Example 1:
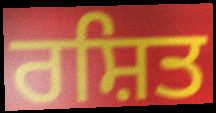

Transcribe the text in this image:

ਰਸ਼ਿਤ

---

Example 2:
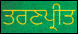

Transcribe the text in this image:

ਤਰਣਪ੍ਰੀਤ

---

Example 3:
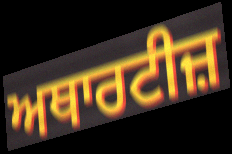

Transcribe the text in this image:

ਅਥਾਰਟੀਜ਼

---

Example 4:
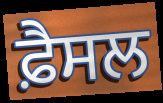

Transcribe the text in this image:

ਫ਼ੈਸਲ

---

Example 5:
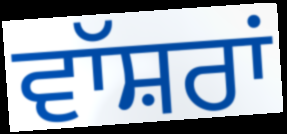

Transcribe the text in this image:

ਵਾੱਸ਼ਰਾਂ